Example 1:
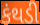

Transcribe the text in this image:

કંથડી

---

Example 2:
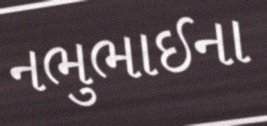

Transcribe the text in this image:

નભુભાઈના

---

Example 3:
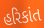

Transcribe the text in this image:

હરિકાંત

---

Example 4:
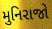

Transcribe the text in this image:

મુનિરાજો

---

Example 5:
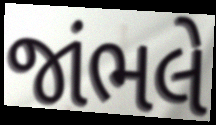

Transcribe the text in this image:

જાંભલે